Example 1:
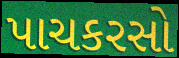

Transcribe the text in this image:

પાચકરસો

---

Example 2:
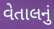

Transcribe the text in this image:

વેતાલનું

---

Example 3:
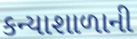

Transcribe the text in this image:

કન્યાશાળાની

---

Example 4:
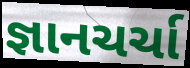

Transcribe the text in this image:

જ્ઞાનચર્ચા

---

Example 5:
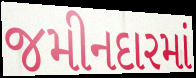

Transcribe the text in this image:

જમીનદારમાં